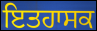
ਇਤਹਾਸਕ